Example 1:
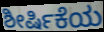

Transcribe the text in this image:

ಶೀರ್ಷಿಕೆಯ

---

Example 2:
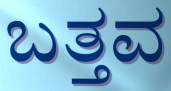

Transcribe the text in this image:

ಬತ್ತವ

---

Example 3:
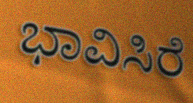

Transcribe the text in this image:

ಭಾವಿಸಿರೆ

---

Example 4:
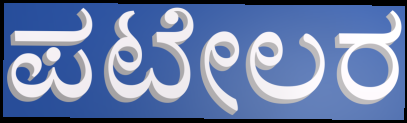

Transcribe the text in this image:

ಪಟೇಲರ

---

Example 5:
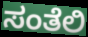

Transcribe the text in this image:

ಸಂತೆಲಿ